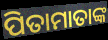
ପିତାମାତାଙ୍କ